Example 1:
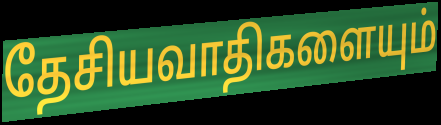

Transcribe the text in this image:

தேசியவாதிகளையும்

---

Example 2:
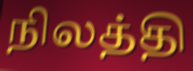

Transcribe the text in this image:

நிலத்தி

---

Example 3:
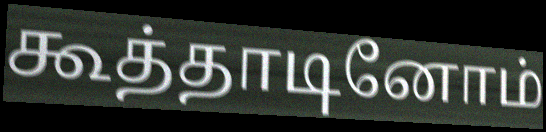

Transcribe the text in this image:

கூத்தாடினோம்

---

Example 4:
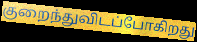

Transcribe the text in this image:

குறைந்துவிடப்போகிறது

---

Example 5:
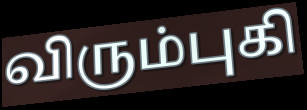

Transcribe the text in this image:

விரும்புகி